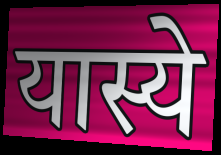
यास्ये